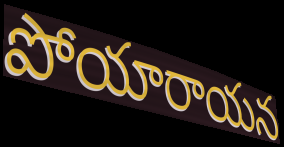
పోయారాయన